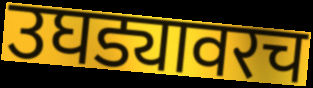
उघड्यावरच